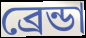
ব্রেন্ডা